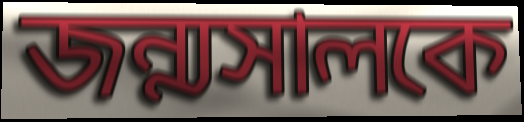
জন্মসালকে